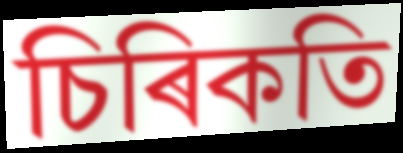
চিৰিকতি